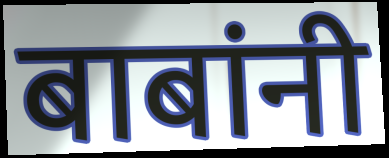
बाबांनी